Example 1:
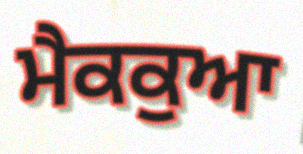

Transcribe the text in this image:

ਮੈਕਕੁਆ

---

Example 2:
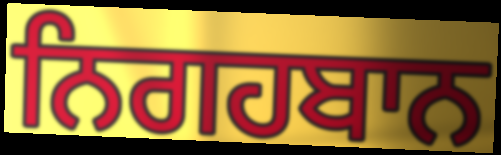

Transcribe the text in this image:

ਨਿਗਹਬਾਨ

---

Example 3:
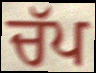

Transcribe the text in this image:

ਚੱਪ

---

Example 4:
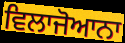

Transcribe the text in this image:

ਵਿਲਾਜੋਆਨਾ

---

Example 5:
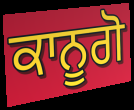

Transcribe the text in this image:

ਕਾਨੂਗੋ